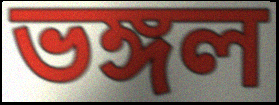
ভঙ্গল